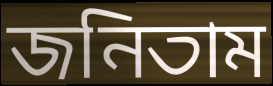
জনিতাম